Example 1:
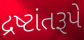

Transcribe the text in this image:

દ્રષ્ટાંતરૂપે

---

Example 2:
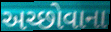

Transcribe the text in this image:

અચ્છોવાના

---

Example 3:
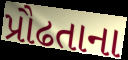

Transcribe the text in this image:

પ્રૌઢતાના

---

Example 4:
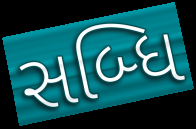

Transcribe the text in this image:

સબ્ધિ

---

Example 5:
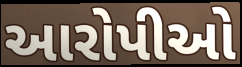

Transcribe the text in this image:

આરોપીઓ